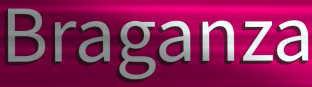
Braganza